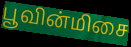
பூவின்மிசை